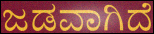
ಜಡವಾಗಿದೆ